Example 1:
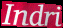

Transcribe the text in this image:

Indri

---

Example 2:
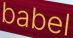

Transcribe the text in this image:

babel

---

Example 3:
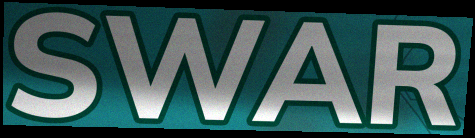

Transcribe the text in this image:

SWAR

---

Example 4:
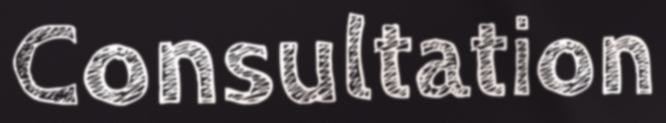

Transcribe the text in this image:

Consultation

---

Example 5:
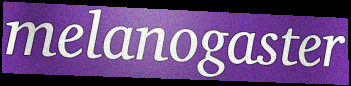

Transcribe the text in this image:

melanogaster